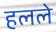
हलले